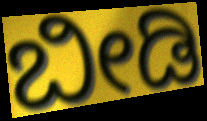
ಬೀಡಿ